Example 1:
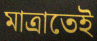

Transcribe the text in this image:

মাত্রাতেই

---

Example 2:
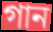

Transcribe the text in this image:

গান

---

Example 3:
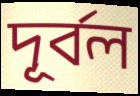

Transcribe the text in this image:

দূর্বল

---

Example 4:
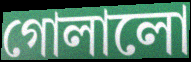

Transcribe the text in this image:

গোলালো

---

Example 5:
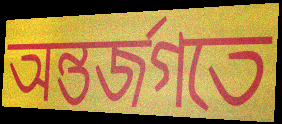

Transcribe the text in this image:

অন্তর্জগতে